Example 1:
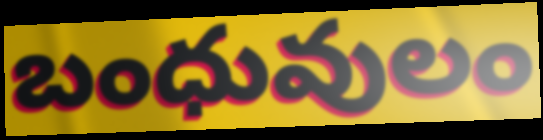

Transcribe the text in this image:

బంధువులం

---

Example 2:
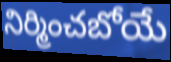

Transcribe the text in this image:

నిర్మించబోయే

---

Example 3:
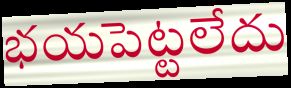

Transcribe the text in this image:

భయపెట్టలేదు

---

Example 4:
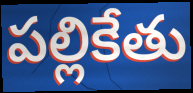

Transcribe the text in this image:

పల్లికేతు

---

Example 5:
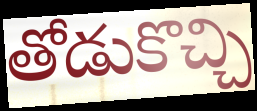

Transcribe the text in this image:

తోడుకొచ్చి